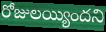
రోజులయ్యిందని